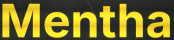
Mentha